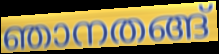
ഞാനതങ്ങ്